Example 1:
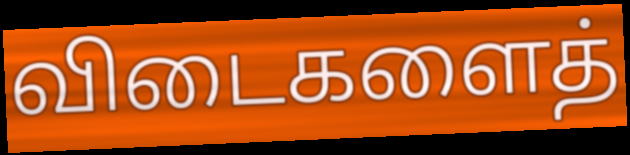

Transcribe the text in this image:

விடைகளைத்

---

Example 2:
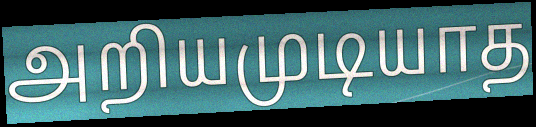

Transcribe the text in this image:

அறியமுடியாத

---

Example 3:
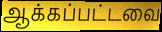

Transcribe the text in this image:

ஆக்கப்பட்டவை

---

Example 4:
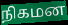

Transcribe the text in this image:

நிகமன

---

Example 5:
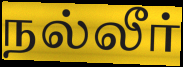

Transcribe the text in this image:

நல்லீர்